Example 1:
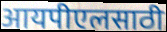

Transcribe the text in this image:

आयपीएलसाठी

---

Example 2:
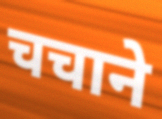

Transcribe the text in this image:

चचाने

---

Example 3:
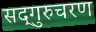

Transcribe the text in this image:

सद्‍गुरुचरण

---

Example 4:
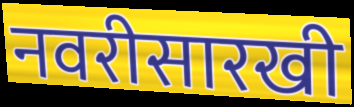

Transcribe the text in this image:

नवरीसारखी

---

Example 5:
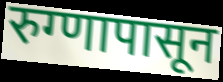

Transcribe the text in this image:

रुग्णापासून